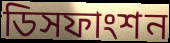
ডিসফাংশন